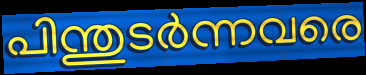
പിന്തുടർന്നവരെ